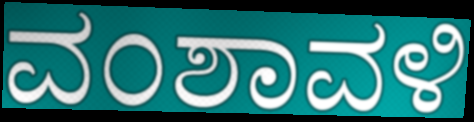
ವಂಶಾವಳಿ